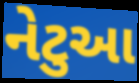
નેટુઆ